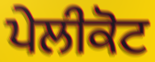
ਪੇਲੀਕੋਟ